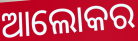
ଆଲୋକର